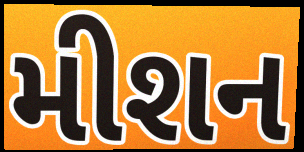
મીશન